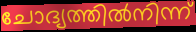
ചോദ്യത്തിൽനിന്ന്